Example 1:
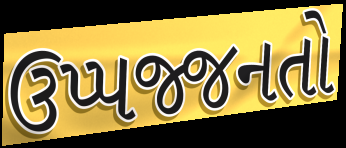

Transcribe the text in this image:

ઉપ્પજ્જનતો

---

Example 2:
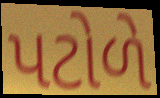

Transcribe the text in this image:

પટોળે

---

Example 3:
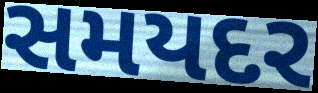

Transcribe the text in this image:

સમયદર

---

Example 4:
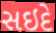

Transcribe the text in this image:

સઇદે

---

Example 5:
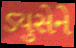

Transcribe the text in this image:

ડ્યુસેને